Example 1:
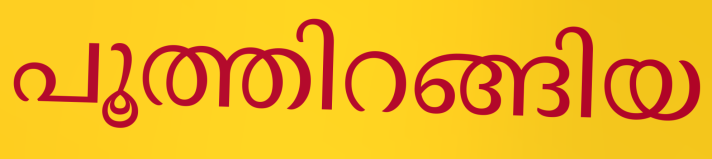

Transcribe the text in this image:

പൂത്തിറങ്ങിയ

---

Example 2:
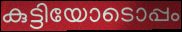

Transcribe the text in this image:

കുട്ടിയോടൊപ്പം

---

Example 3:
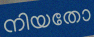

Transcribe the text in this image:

നിയതോ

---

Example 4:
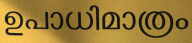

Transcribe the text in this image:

ഉപാധിമാത്രം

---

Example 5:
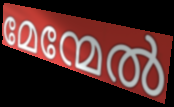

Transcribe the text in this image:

മേന്മേൽ